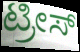
ಟ್ರೀಸ್